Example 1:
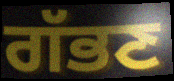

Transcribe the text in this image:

ਗੱਭਣ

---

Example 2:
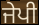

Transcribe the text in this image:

ਜੇਪੀ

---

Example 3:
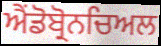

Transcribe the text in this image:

ਐਂਡੋਬ੍ਰੋਨਚਿਅਲ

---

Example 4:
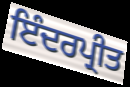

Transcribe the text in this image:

ਇੰਦਰਪ੍ਰੀਤ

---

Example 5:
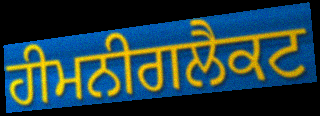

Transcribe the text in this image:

ਹੀਮਨੀਗਲੈਕਟ